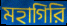
মহাগিরি